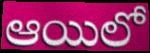
ఆయిలో